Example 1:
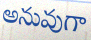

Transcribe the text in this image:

అనువుగా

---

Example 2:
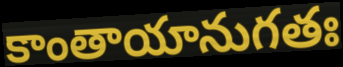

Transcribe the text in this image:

కాంతాయానుగతః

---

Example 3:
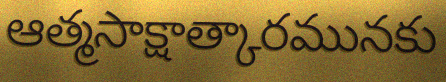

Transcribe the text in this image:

ఆత్మసాక్షాత్కారమునకు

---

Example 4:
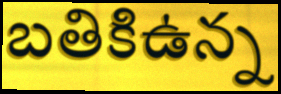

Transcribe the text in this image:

బతికిఉన్న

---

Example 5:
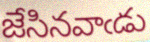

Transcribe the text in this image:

జేసినవాఁడు